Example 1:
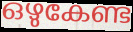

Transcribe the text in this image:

ഒഴുകേണ്ട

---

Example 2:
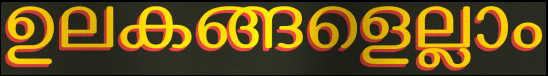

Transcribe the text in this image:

ഉലകങ്ങളെല്ലാം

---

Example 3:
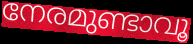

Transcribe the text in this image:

നേരമുണ്ടാവൂ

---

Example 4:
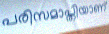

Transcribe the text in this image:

പരിസമാപ്തിയാണ്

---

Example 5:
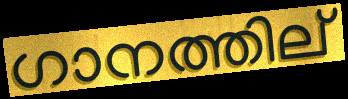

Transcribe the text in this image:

ഗാനത്തില്